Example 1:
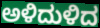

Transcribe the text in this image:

ಅಳಿದುಳಿದ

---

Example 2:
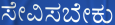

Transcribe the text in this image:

ಸೇವಿಸಬೇಕು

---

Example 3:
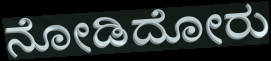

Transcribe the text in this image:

ನೋಡಿದೋರು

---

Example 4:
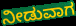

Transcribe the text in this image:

ನೀಡುವಾಗ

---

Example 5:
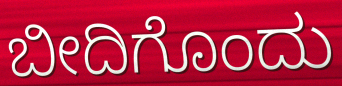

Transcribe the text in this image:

ಬೀದಿಗೊಂದು